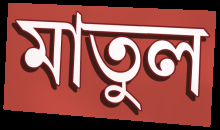
মাতুল